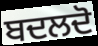
ਬਦਲਦੋ